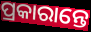
ପ୍ରକାରାନ୍ତେ